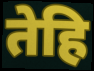
तेहि